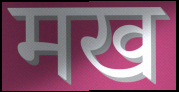
मख